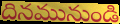
దినమునుండి